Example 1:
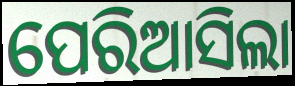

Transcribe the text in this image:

ପେରିଆସିଲା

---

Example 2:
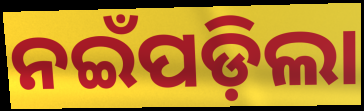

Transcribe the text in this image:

ନଇଁପଡ଼ିଲା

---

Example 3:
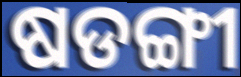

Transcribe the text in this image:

ଷଡଙ୍ଗୀ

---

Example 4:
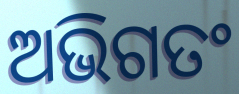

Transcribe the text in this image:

ଅଭିଗତଂ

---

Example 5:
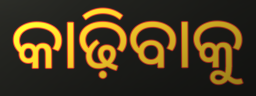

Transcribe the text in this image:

କାଢ଼ିବାକୁ